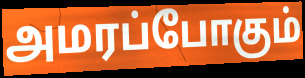
அமரப்போகும்